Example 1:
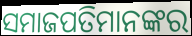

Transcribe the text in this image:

ସମାଜପତିମାନଙ୍କର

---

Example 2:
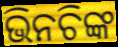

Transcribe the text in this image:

ଭିନଚିଙ୍କ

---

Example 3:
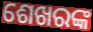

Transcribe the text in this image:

ଶେଖରଙ୍କ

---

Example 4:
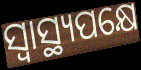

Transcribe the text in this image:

ସ୍ଵାସ୍ଥ୍ୟପକ୍ଷେ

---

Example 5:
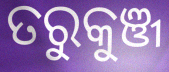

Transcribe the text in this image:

ତରୁକୁଞ୍ଜ